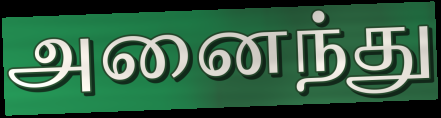
அனைந்து